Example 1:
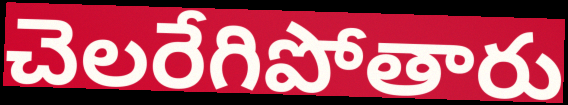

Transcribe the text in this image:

చెలరేగిపోతారు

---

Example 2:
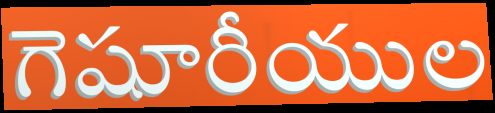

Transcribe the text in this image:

గెషూరీయుల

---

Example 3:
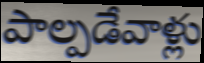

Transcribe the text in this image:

పాల్పడేవాళ్లు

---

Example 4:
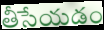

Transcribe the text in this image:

తీసేయడం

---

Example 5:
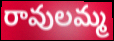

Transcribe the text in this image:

రావులమ్మ